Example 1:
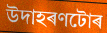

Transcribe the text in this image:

উদাহৰণটোৰ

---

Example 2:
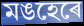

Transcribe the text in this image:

মঙহেৰে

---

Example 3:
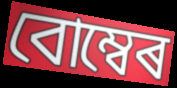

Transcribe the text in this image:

বোম্বেৰ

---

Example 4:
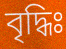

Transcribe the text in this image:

বৃদ্ধিঃ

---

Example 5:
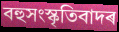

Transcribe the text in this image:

বহুসংস্কৃতিবাদৰ